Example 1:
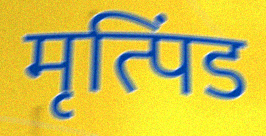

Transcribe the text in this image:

मृत्पिंड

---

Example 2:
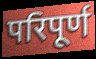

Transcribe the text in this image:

परिपूर्ण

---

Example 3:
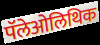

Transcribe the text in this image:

पॅलेओलिथिक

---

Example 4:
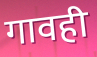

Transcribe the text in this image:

गावही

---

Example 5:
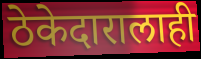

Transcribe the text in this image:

ठेकेदारालाही